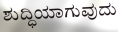
ಶುದ್ಧಿಯಾಗುವುದು